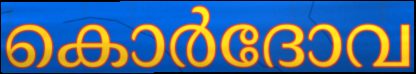
കൊർദോവ